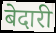
बेदारी